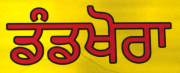
ਡੰਡਖੋਰਾ